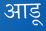
आडू